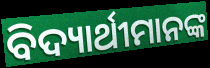
ବିଦ୍ୟାର୍ଥୀମାନଙ୍କ